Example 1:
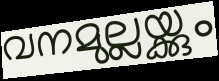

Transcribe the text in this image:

വനമുല്ലയ്ക്കും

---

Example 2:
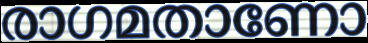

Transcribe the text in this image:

രാഗമതാണോ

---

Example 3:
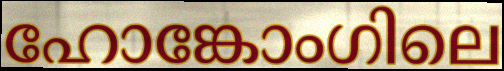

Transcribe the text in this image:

ഹോങ്കോംഗിലെ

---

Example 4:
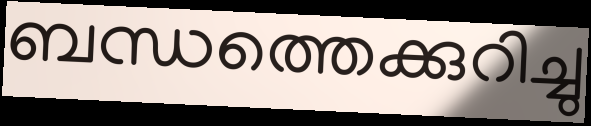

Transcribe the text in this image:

ബന്ധത്തെക്കുറിച്ചു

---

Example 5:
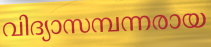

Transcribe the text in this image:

വിദ്യാസമ്പന്നരായ